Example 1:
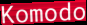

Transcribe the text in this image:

Komodo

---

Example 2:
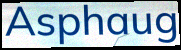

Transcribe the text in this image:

Asphaug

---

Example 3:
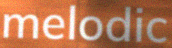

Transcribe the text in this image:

melodic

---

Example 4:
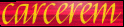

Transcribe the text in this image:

carcerem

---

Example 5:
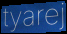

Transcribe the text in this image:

tyarej